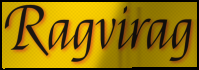
Ragvirag